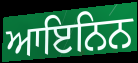
ਆਇਨਿਨ